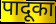
पादूका